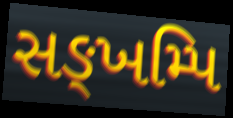
સઙ્ખમ્પિ